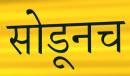
सोडूनच